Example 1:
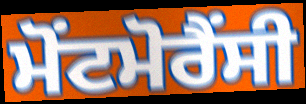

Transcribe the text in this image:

ਮੋਂਟਮੋਰੈਂਸੀ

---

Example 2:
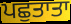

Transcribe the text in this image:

ਪਛੁਤਾਤਾ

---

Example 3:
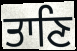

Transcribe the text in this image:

ਤਾਣਿ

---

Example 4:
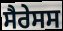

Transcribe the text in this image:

ਸੈਰੇਸਸ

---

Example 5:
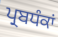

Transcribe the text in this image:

ਪ੍ਰਬਧੰਕਾਂ